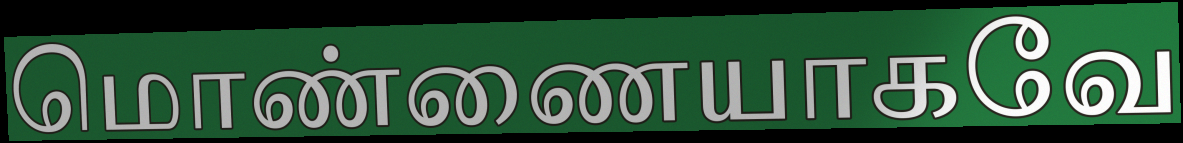
மொண்ணையாகவே